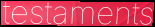
testaments